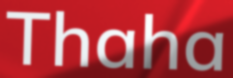
Thaha